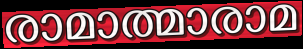
രാമാത്മാരാമ